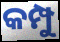
କମ୍ପୁ